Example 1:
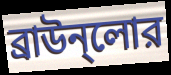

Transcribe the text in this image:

ব্রাউন্লোর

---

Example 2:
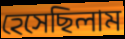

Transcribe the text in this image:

হেসেছিলাম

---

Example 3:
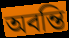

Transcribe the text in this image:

অবন্তি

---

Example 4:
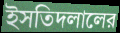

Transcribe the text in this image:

ইসতিদলালের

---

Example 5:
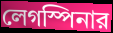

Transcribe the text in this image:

লেগস্পিনার